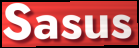
Sasus